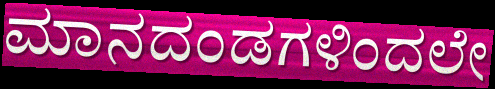
ಮಾನದಂಡಗಳಿಂದಲೇ